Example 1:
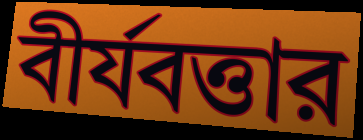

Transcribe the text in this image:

বীর্যবত্তার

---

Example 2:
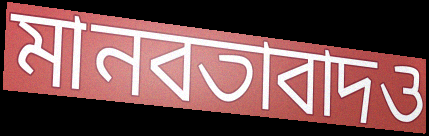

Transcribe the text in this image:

মানবতাবাদও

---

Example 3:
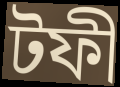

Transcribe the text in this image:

টফী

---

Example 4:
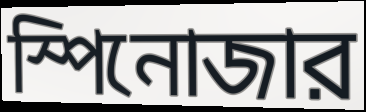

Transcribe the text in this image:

স্পিনোজার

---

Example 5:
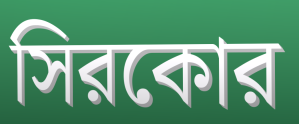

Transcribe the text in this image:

সিরকোর